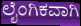
ಲೈಂಗಿಕವಾಗಿ